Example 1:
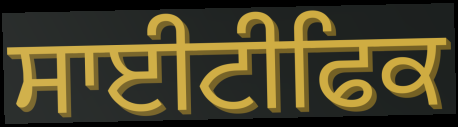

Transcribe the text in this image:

ਸਾਈਟੀਫਿਕ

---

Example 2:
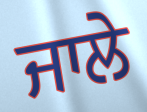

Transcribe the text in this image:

ਜਾਲੇ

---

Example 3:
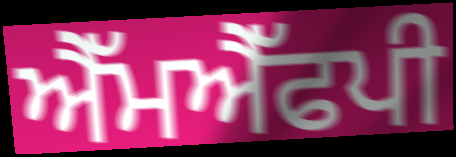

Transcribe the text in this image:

ਐੱਮਐੱਫਪੀ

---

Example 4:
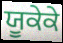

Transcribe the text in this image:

ਯੂਕੇਕੇ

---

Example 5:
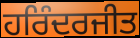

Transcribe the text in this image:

ਹਰਿੰਦਰਜੀਤ